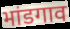
भांडगाव